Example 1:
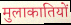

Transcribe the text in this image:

मुलाकातियों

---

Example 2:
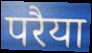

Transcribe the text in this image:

परैया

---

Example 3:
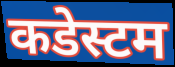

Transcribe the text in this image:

कडेस्टम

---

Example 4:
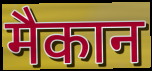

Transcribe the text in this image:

मैकान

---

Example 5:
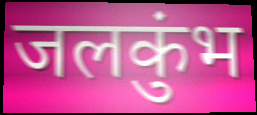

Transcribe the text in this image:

जलकुंभ